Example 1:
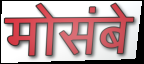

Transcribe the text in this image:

मोसंबे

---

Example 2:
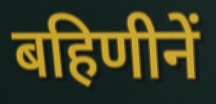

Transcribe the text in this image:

बहिणीनें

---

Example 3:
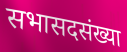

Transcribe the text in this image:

सभासदसंख्या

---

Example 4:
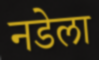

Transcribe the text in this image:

नडेला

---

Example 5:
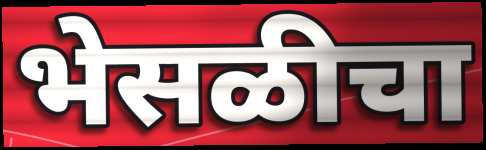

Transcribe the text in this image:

भेसळीचा